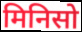
मिनिसो